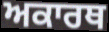
ਅਕਾਰਥ